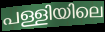
പള്ളിയിലെ